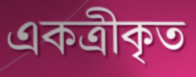
একত্রীকৃত